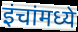
इंचांमध्ये